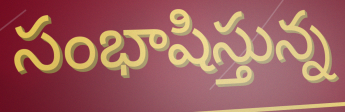
సంభాషిస్తున్న